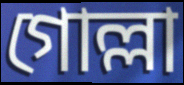
গোল্লা